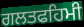
ਗਲਤਫਹਿਮੀ